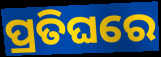
ପ୍ରତିଘରେ